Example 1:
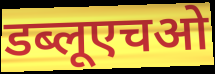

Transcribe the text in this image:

डब्लूएचओ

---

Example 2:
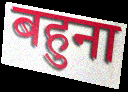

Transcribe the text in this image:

बहुना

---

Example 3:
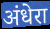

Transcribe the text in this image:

अंधेरा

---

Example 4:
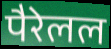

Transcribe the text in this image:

पैरेलल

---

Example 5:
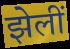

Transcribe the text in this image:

झेलीं